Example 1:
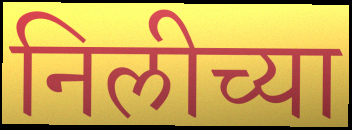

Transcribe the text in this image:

निलीच्या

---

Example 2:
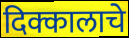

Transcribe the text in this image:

दिक्कालाचे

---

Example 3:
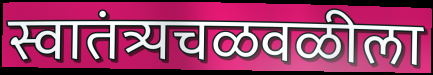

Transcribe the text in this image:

स्वातंत्र्यचळवळीला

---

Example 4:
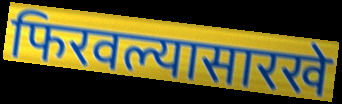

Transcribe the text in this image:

फिरवल्यासारखे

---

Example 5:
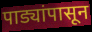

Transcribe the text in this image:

पाड्यांपासून